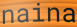
naina